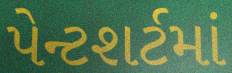
પેન્ટશર્ટમાં